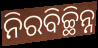
ନିରବିଚ୍ଛିନ୍ନ